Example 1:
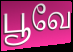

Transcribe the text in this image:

பூவே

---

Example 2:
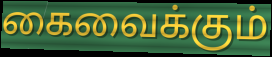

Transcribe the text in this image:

கைவைக்கும்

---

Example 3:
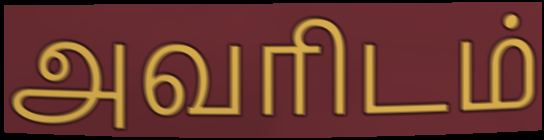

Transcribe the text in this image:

அவரிடம்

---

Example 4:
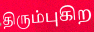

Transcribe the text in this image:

திரும்புகிற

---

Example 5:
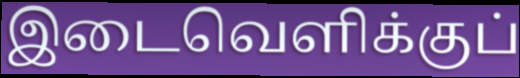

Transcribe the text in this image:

இடைவெளிக்குப்